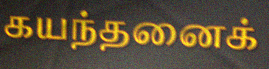
கயந்தனைக்